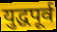
युद्धपूर्व